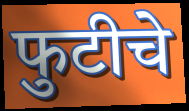
फुटीचे